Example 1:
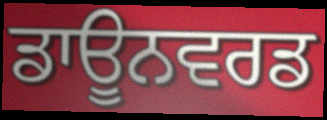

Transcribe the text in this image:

ਡਾਊਨਵਰਡ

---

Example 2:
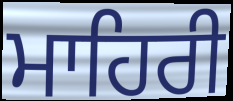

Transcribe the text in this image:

ਮਾਹਿਰੀ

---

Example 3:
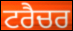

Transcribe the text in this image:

ਟਰੈਚਰ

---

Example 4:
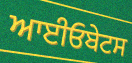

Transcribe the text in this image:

ਆਈਓਬੇਟਸ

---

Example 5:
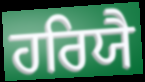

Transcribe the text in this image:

ਹਰਿਯੈ